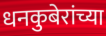
धनकुबेरांच्या